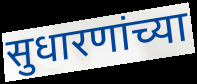
सुधारणांच्या